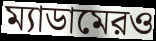
ম্যাডামেরও